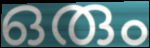
ഒരും